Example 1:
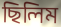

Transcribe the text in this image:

ছিলিম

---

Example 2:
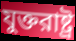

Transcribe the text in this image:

যুক্তরাষ্ট্র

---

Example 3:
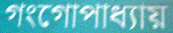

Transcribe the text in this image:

গংগোপাধ্যায়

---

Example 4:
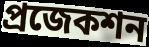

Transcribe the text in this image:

প্রজেকশন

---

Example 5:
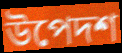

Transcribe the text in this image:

উপেদশ